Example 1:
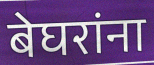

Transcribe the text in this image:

बेघरांना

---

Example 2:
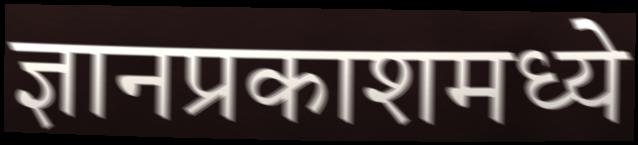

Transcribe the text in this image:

ज्ञानप्रकाशमध्ये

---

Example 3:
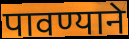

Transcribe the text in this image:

पावण्याने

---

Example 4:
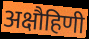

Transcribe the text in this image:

अक्षौहिणी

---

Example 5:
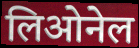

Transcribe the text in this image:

लिओनेल